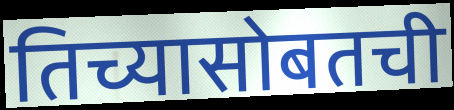
तिच्यासोबतची